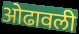
ओढावली